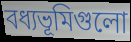
বধ্যভূমিগুলো